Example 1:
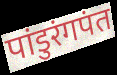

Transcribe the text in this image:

पांडुरंगपंत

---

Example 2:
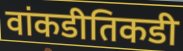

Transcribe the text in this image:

वांकडीतिकडी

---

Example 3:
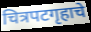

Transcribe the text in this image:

चित्रपटगृहाचे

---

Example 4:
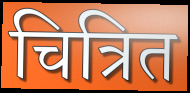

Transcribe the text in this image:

चित्रित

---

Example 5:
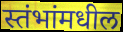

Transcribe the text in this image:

स्तंभांमधील